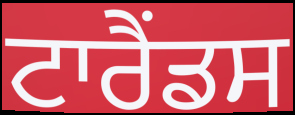
ਟਾਰੈਂਡਸ